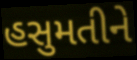
હસુમતીને